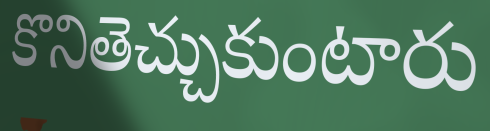
కొనితెచ్చుకుంటారు